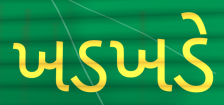
ખડખડે